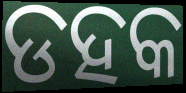
ଡହକ